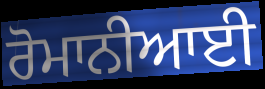
ਰੋਮਾਨੀਆਈ